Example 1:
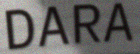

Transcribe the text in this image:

DARA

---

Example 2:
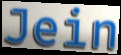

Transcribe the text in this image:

Jein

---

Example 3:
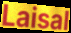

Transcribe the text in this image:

Laisal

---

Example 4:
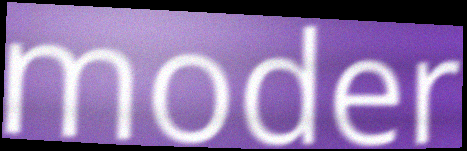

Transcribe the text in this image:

moder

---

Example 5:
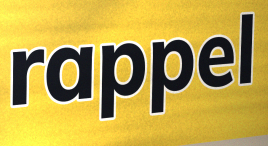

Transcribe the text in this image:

rappel